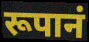
रूपानं